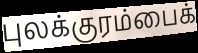
புலக்குரம்பைக்